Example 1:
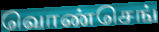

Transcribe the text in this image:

வொண்செங்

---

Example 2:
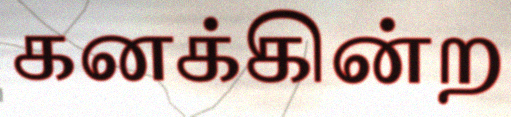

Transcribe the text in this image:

கனக்கின்ற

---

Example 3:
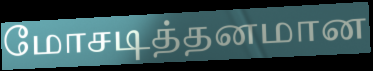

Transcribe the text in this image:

மோசடித்தனமான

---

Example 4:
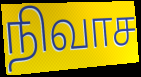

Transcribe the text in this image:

நிவாச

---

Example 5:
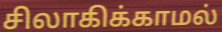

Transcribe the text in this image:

சிலாகிக்காமல்